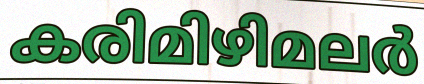
കരിമിഴിമലർ